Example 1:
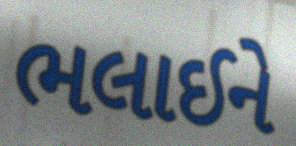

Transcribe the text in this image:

ભલાઈને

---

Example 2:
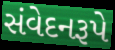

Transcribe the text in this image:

સંવેદનરૂપે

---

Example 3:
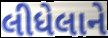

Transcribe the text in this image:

લીધેલાને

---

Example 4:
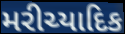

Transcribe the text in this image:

મરીચ્યાદિક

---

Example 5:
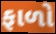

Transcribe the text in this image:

ફાળો